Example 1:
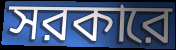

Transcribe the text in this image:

সরকারে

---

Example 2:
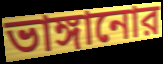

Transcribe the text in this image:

ভাঙ্গানোর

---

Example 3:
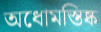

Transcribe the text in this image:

অধোমস্তিষ্ক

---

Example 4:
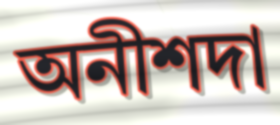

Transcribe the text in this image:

অনীশদা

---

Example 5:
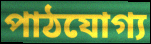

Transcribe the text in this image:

পাঠযোগ্য